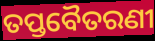
ତପ୍ତବୈତରଣୀ